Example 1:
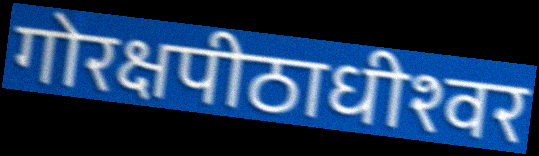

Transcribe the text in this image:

गोरक्षपीठाधीश्वर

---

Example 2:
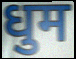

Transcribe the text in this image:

धुम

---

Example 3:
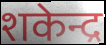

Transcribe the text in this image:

शकेन्द्र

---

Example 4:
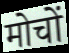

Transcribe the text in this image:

मोचों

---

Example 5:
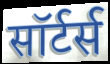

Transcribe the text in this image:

सॉर्टर्स